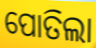
ପୋତିଲା